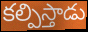
కల్పిస్తాడు